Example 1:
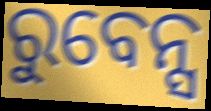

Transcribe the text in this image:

ରୁବେନ୍ସ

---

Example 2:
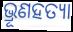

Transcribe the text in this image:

ଭ୍ରୂଣହତ୍ୟା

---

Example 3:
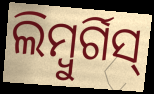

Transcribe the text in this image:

ଲିମ୍ବୁର୍ଗିସ୍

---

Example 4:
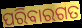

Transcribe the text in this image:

ପରିବାରଗତ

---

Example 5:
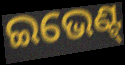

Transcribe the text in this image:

ଇଭେଣ୍ଟ୍